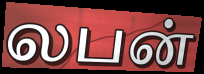
லபன்